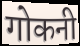
गोकनी